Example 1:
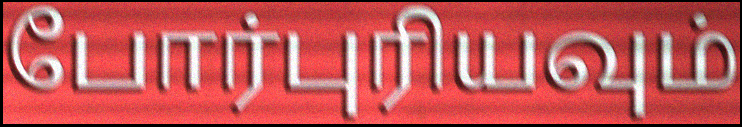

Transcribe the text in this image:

போர்புரியவும்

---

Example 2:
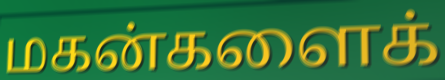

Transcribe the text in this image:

மகன்களைக்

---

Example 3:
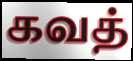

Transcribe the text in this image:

கவத்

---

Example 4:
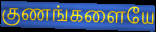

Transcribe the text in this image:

குணங்களையே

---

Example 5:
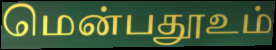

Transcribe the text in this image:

மென்பதூஉம்